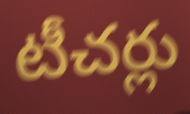
టీచర్లు